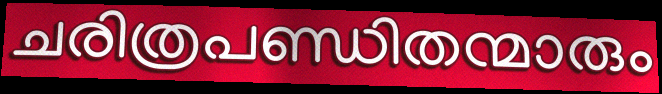
ചരിത്രപണ്ഡിതന്മാരും